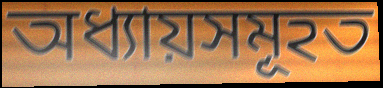
অধ্যায়সমূহত